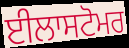
ਈਲਾਸਟੋਮਰ